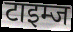
टाइम्ज